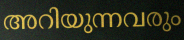
അറിയുന്നവരും